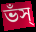
ভঁস্